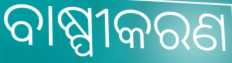
ବାଷ୍ପୀକରଣ